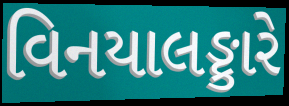
વિનયાલઙ્કારે